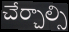
చేర్చాల్సి